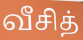
வீசித்